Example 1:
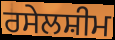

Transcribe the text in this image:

ਰਸੇਲਸ਼ੀਮ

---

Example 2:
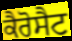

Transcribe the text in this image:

ਕੈਰੋਸੈਟ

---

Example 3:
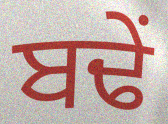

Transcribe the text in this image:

ਬਢੇਂ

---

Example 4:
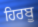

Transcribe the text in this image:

ਹਿਰਬੂ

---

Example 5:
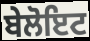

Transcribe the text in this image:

ਬੇਲੋਇਟ